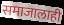
समाजालाही